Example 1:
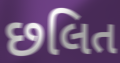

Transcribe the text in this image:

છલિત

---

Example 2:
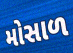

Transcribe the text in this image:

મોસાળ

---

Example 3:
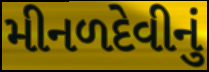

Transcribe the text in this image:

મીનળદેવીનું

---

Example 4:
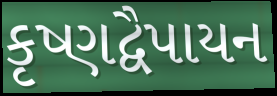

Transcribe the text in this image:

કૃષ્ણદ્વૈપાયન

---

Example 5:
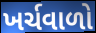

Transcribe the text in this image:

ખર્ચવાળો